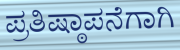
ಪ್ರತಿಷ್ಠಾಪನೆಗಾಗಿ